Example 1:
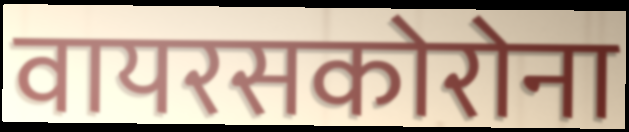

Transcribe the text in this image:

वायरसकोरोना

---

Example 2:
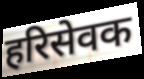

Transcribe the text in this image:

हरिसेवक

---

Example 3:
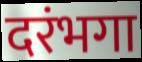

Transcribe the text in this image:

दरंभगा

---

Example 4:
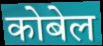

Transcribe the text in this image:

कोबेल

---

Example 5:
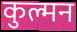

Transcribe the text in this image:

कुल्मन